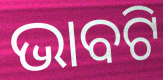
ଭାବଟି